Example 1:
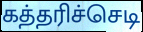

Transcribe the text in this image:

கத்தரிச்செடி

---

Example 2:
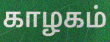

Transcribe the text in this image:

காழகம்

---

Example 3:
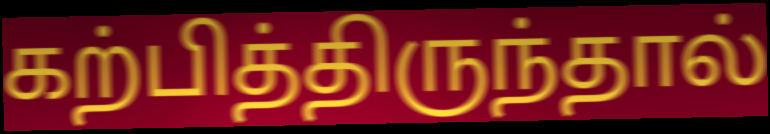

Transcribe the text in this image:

கற்பித்திருந்தால்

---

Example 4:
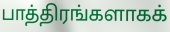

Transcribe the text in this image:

பாத்திரங்களாகக்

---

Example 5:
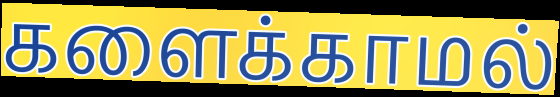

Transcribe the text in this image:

களைக்காமல்